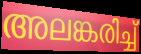
അലങ്കരിച്ച്